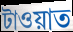
টাওয়াত